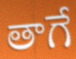
తాగే